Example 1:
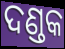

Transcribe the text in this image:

ଦଣ୍ଡକ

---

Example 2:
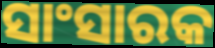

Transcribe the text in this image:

ସାଂସାରକ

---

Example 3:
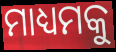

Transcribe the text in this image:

ମାଧ୍ୟମକୁ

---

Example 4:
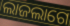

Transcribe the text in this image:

ଲାଜଲାଗେ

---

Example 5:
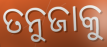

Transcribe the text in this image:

ତନୁଜାକୁ